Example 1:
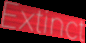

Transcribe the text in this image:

Extinct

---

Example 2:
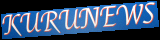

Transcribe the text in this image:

KURUNEWS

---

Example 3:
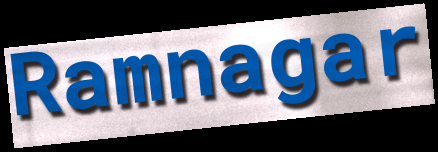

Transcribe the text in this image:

Ramnagar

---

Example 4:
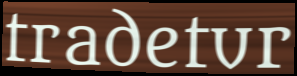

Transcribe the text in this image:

tradetur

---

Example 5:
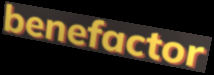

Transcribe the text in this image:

benefactor